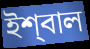
ইশ্‌বাল